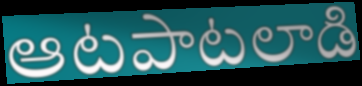
ఆటపాటలాడి